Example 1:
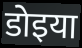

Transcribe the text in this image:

डोइया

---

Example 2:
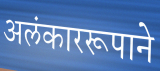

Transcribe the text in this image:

अलंकाररूपाने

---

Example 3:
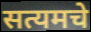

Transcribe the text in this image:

सत्यमचे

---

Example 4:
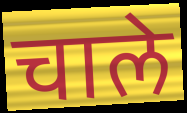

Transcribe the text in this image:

चाले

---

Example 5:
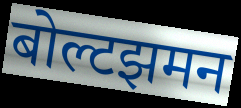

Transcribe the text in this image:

बोल्टझमन